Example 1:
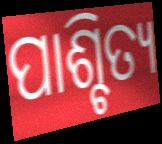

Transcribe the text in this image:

ପାଶ୍ଚିତ୍ୟ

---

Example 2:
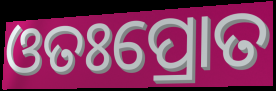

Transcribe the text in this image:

ଓତଃପ୍ରୋତ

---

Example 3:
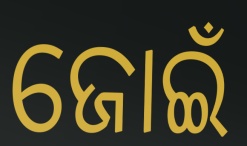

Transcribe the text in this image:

ଜୋଇଁ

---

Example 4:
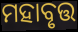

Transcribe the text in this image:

ମହାବୃତ୍ତ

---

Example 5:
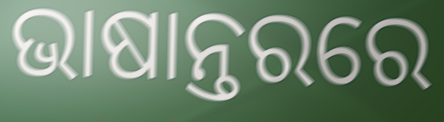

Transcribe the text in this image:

ଭାଷାନ୍ତରରେ